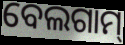
ବେଲଗାମ୍